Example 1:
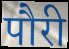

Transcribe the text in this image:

पौरी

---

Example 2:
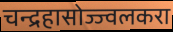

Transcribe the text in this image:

चन्द्रहासोज्ज्वलकरा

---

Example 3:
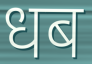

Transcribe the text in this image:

धब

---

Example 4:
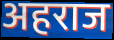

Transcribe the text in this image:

अहराज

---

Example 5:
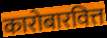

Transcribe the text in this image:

कारोबारवित्त